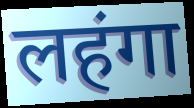
लहंगा